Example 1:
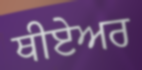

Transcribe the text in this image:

ਥੀਏਅਰ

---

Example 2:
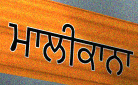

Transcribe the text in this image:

ਮਾਲੀਕਾਨਾ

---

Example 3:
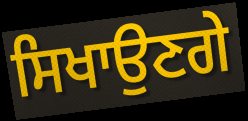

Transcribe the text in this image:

ਸਿਖਾਉਣਗੇ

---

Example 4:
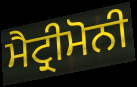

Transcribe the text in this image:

ਮੈਟ੍ਰੀਮੋਨੀ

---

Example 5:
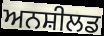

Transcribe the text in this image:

ਅਨਸ਼ੀਲਡ